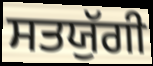
ਸਤਯੁੱਗੀ